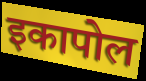
इकापोल